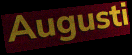
Augusti